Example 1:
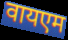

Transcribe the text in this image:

वायएम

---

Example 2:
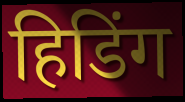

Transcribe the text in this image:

हिडिंग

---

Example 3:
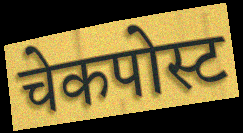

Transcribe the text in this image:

चेकपोस्ट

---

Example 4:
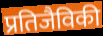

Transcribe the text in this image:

प्रतिजैविकी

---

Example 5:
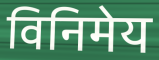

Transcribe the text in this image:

विनिमेय